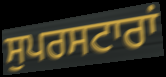
ਸੁਪਰਸਟਾਰਾਂ